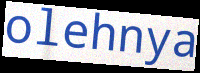
olehnya